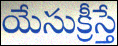
యేసుక్రీస్తే